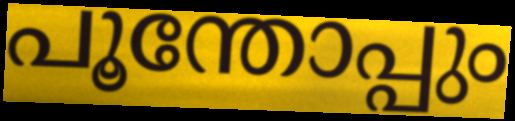
പൂന്തോപ്പും